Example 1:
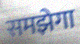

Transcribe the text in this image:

समझेगा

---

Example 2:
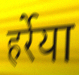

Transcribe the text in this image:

हर्रेया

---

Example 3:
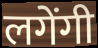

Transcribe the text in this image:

लगेंगी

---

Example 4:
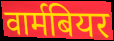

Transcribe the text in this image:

वार्मबियर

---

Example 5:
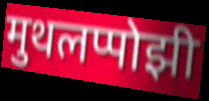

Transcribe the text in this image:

मुथलप्पोझी